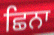
ਛਿਨਾ